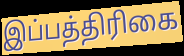
இப்பத்திரிகை